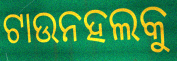
ଟାଉନହଲକୁ